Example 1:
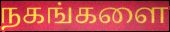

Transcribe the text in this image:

நகங்களை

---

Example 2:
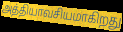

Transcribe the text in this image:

அத்தியாவசியமாகிறது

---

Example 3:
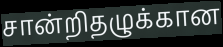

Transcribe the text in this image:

சான்றிதழுக்கான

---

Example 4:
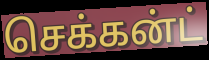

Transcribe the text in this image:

செக்கன்ட்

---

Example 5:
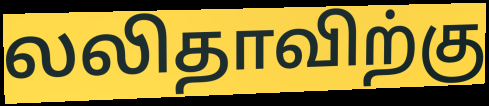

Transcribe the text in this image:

லலிதாவிற்கு